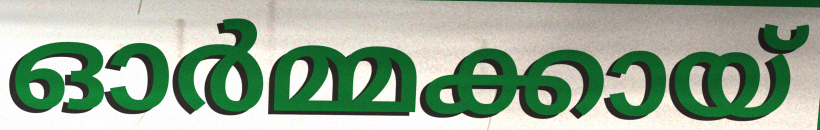
ഓർമ്മക്കായ്